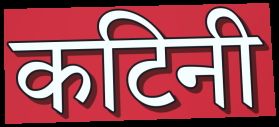
कटिनी